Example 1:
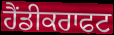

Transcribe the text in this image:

ਹੈਂਡੀਕਰਾਫਟ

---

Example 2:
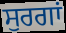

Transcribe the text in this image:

ਸੁਰਗਾਂ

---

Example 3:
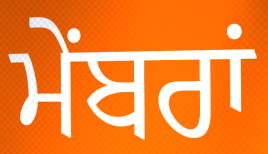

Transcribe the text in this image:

ਮੇਂਬਰਾਂ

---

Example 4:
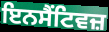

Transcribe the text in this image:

ਇਨਸੈਂਟਿਵਜ਼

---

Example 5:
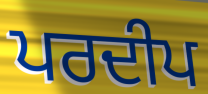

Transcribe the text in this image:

ਪਰਦੀਪ